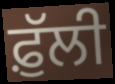
ਫ਼ੁੱਲੀ